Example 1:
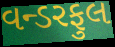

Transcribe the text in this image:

વન્ડરફુલ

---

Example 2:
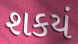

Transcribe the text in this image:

શકયં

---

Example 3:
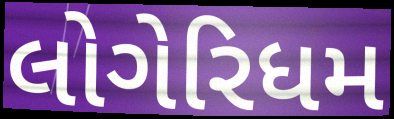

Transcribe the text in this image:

લોગેરિધમ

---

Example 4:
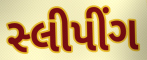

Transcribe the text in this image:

સ્લીપીંગ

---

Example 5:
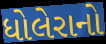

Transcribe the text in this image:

ધોલેરાનો